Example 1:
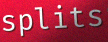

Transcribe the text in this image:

splits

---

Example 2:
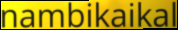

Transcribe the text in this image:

nambikaikal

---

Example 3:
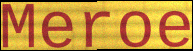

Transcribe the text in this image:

Meroe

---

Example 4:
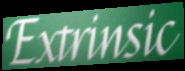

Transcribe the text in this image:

Extrinsic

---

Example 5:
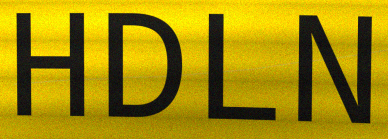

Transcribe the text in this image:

HDLN